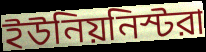
ইউনিয়নিস্টরা